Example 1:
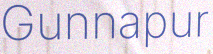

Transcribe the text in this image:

Gunnapur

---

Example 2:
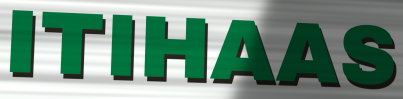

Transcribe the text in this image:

ITIHAAS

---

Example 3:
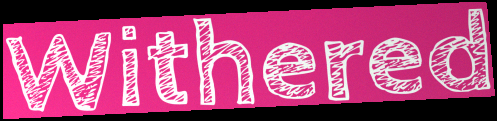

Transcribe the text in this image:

Withered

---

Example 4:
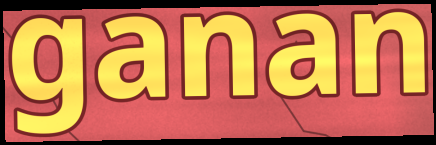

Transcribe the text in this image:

ganan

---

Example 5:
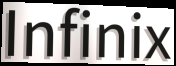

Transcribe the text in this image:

Infinix